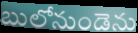
బులోనుండెను